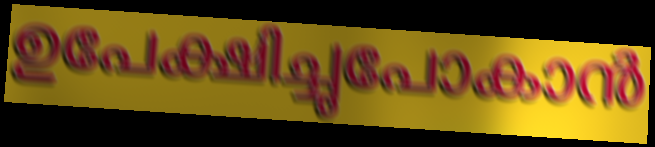
ഉപേക്ഷിച്ചുപോകാൻ